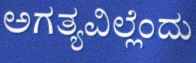
ಅಗತ್ಯವಿಲ್ಲೆಂದು